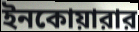
ইনকোয়ারার